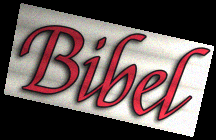
Bibel